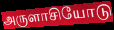
அருளாசியோடு